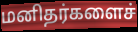
மனிதர்களைச்